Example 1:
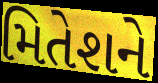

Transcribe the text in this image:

મિતેશને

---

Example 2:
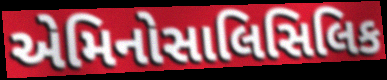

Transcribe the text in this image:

એમિનોસાલિસિલિક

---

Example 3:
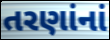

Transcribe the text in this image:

તરણાંનાં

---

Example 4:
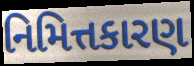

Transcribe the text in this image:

નિમિત્તકારણ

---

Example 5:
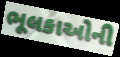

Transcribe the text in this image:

ભૂલકાઓની